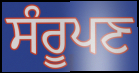
ਸੰਰੂਪਣ